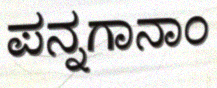
ಪನ್ನಗಾನಾಂ